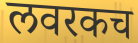
लवरकच